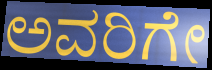
ಅವರಿಗೇ